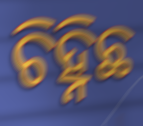
ଚିହ୍ନିଛ